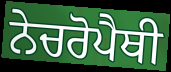
ਨੇਚਰੋਪੈਥੀ